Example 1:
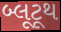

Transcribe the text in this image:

બ્લૂટૂથ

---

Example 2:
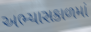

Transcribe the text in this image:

અભ્યાસકાળમાં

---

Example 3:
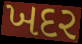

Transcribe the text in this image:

ખદર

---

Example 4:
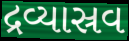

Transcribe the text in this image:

દ્રવ્યાસ્રવ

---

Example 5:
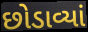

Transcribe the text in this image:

છોડાવ્યાં